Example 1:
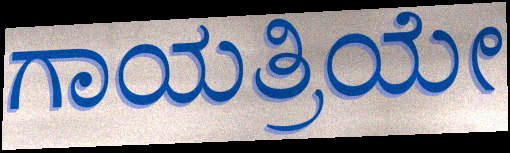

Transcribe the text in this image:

ಗಾಯತ್ರಿಯೇ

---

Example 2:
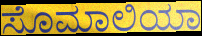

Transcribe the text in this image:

ಸೊಮಾಲಿಯಾ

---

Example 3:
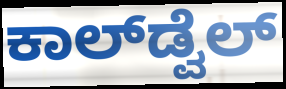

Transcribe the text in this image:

ಕಾಲ್‌ಡ್ವೆಲ್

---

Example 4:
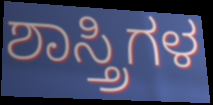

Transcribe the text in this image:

ಶಾಸ್ತ್ರಿಗಳ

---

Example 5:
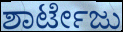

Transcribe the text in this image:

ಶಾರ್ಟೇಜು